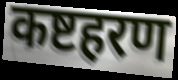
कष्टहरण